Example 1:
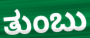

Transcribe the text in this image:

ತುಂಬು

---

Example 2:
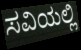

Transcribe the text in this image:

ಸವಿಯಲ್ಲಿ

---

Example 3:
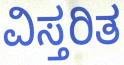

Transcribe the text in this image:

ವಿಸ್ತರಿತ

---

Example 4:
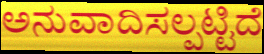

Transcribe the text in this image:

ಅನುವಾದಿಸಲ್ಪಟ್ಟಿದೆ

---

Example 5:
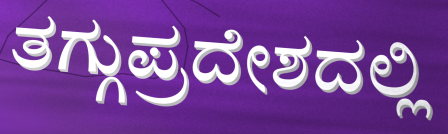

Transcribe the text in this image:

ತಗ್ಗುಪ್ರದೇಶದಲ್ಲಿ